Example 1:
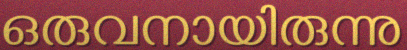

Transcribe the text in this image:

ഒരുവനായിരുന്നു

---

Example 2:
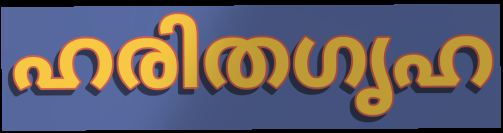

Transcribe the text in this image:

ഹരിതഗൃഹ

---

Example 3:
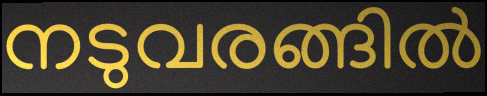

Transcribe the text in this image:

നടുവരങ്ങിൽ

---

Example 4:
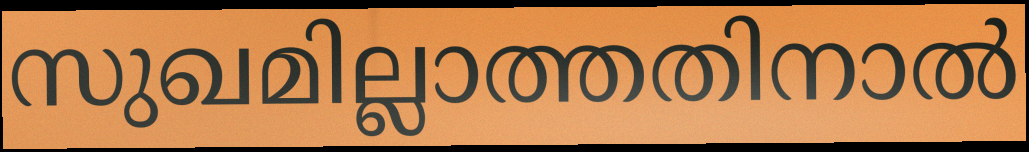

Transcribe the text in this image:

സുഖമില്ലാത്തതിനാൽ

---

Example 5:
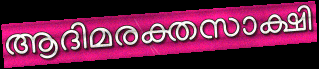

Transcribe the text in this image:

ആദിമരക്തസാക്ഷി